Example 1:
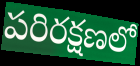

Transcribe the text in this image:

పరిరక్షణలో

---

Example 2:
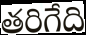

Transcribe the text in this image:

తరిగేది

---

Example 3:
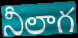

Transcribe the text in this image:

నీలాగ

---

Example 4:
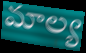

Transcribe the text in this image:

మాల్య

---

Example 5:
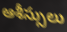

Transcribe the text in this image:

ఆశీస్సులు